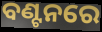
ବଣ୍ଟନରେ